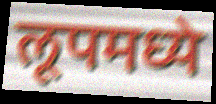
लूपमध्ये